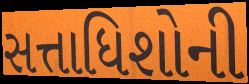
સત્તાધિશોની